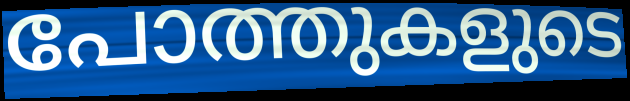
പോത്തുകളുടെ